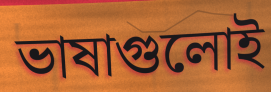
ভাষাগুলোই